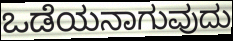
ಒಡೆಯನಾಗುವುದು